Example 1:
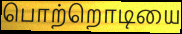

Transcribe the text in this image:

பொற்றொடியை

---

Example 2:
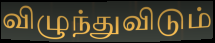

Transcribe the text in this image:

விழுந்துவிடும்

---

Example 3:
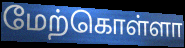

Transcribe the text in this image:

மேற்கொள்ளா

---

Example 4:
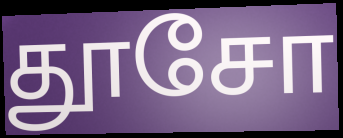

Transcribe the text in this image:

தூசோ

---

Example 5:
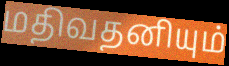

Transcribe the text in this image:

மதிவதனியும்